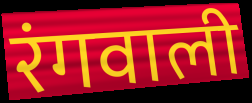
रंगवाली